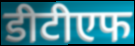
डीटीएफ